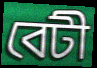
বেটী